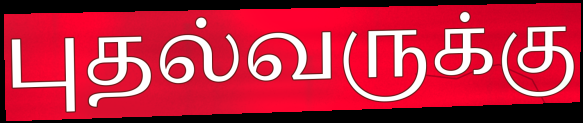
புதல்வருக்கு